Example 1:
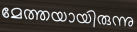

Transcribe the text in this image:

മേത്തയായിരുന്നു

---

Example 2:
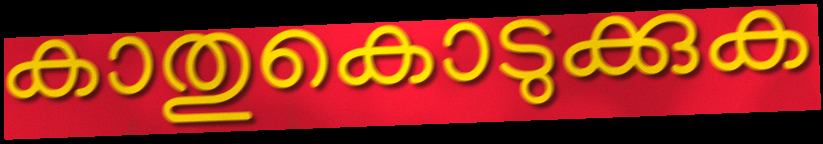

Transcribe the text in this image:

കാതുകൊടുക്കുക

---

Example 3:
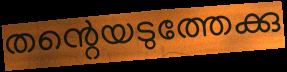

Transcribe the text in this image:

തന്റെയടുത്തേക്കു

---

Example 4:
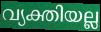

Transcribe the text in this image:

വ്യക്തിയല്ല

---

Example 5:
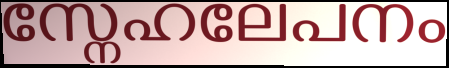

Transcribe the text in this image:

സ്നേഹലേപനം